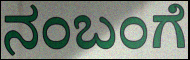
ನಂಬಂಗೆ